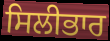
ਸਿਲੀਭਾਰ